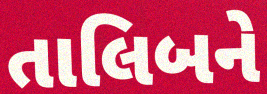
તાલિબને